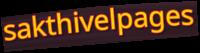
sakthivelpages